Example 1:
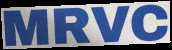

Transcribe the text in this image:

MRVC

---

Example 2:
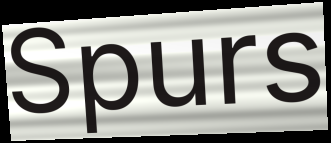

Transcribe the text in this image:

Spurs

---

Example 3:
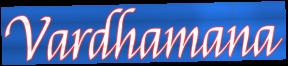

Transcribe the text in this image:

Vardhamana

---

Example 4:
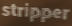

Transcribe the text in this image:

stripper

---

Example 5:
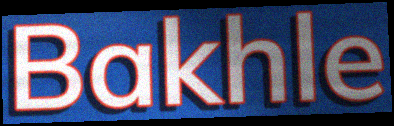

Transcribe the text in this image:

Bakhle